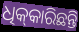
ଧିକ୍‌କାରିଛନ୍ତି